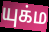
யுக்ம